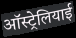
ऑस्‍ट्रेलियाई